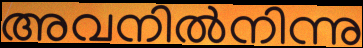
അവനിൽനിന്നു